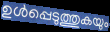
ഉൾപ്പെടുത്തുകയും